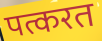
पत्करत